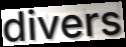
divers